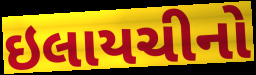
ઇલાયચીનો